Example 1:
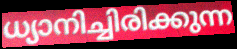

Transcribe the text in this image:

ധ്യാനിച്ചിരിക്കുന്ന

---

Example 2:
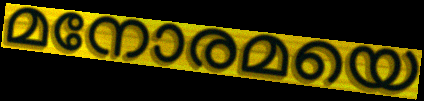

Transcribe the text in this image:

മനോരമയെ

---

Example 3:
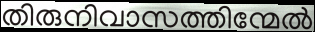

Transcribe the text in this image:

തിരുനിവാസത്തിന്മേൽ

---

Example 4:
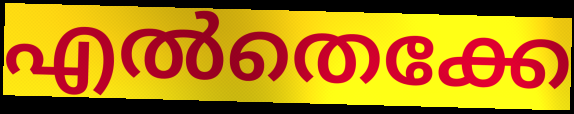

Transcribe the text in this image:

എൽതെക്കേ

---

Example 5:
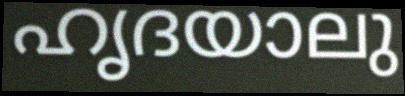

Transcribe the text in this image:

ഹൃദയാലു